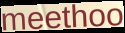
meethoo